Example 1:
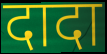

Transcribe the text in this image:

दादा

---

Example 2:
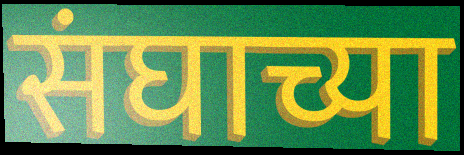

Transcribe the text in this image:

संघाच्या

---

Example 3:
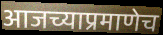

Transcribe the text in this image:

आजच्याप्रमाणेच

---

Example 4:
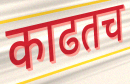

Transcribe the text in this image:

काढतच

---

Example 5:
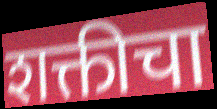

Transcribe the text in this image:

शक्तीचा